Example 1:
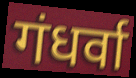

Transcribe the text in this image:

गंधर्वा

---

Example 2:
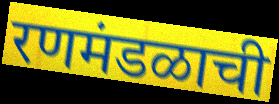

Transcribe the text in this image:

रणमंडळाची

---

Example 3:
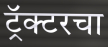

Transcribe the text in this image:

ट्रॅक्टरचा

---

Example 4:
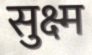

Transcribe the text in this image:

सुक्ष्म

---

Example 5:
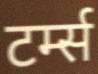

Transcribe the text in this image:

टर्म्स